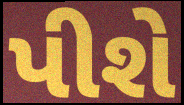
પીશે